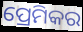
ପ୍ରେମିକର